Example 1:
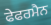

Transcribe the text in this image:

ਫੇਫਰਮੈਨ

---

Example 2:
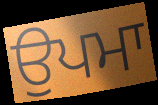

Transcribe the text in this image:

ਉਪਮਾ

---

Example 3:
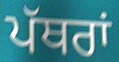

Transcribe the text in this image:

ਪੱਥਰਾਂ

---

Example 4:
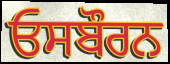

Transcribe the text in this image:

ਓਸਬੌਰਨ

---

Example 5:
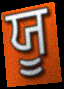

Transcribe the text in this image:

ਯੂ